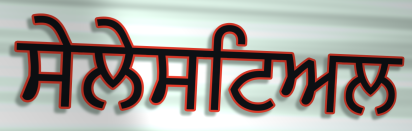
ਸੇਲੇਸਟਿਅਲ